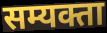
सम्यक्ता